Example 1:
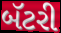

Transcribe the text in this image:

બૅટરી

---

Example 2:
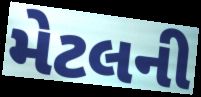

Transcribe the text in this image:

મેટલની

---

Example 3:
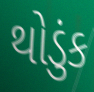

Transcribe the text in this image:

થોડુંક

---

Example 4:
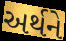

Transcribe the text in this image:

અર્થને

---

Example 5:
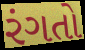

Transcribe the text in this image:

રંગતો